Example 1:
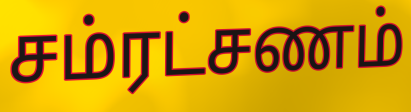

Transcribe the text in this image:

சம்ரட்சணம்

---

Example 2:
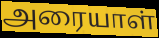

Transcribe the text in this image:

அரையாள்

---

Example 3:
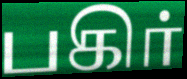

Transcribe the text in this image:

பகிர்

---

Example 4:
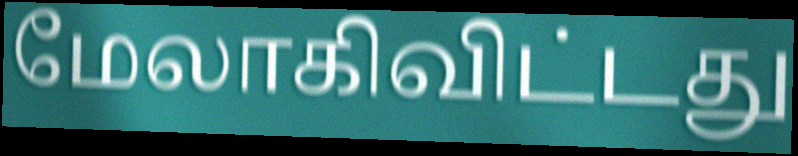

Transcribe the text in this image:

மேலாகிவிட்டது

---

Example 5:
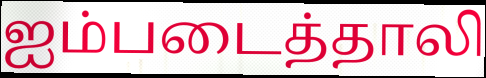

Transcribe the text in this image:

ஐம்படைத்தாலி